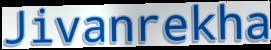
Jivanrekha